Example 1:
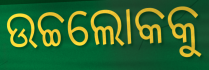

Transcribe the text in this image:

ଉଚ୍ଚଲୋକକୁ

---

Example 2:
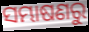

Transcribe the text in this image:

ସମ୍ଭାଷଣରୁ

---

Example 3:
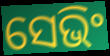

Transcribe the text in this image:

ସେଭିଂ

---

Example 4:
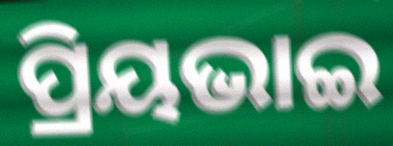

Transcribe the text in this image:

ପ୍ରିୟଭାଇ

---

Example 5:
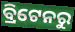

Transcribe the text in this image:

ବ୍ରିଟେନରୁ